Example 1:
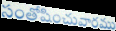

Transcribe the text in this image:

సంతోషించువారము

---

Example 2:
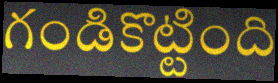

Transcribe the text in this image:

గండికొట్టింది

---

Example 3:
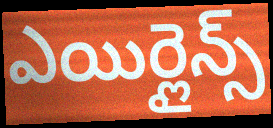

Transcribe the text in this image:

ఎయిర్లైన్స్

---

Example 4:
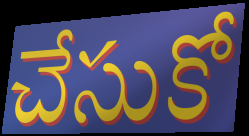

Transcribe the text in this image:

చేసుకో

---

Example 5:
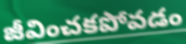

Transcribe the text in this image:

జీవించకపోవడం